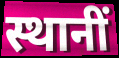
स्थानीं